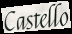
Castello